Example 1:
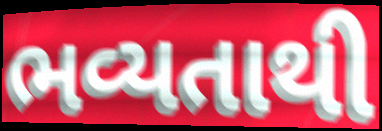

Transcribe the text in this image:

ભવ્યતાથી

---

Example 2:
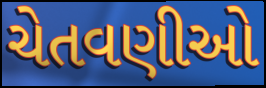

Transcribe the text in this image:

ચેતવણીઓ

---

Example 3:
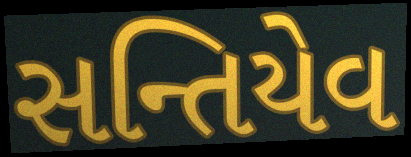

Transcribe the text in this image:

સન્તિયેવ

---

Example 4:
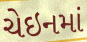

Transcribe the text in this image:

ચેઇનમાં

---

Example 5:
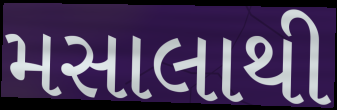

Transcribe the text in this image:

મસાલાથી